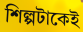
শিল্পটাকেই